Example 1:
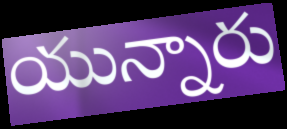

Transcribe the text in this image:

యున్నారు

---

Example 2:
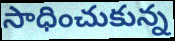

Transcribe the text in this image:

సాధించుకున్న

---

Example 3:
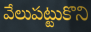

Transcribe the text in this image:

వేలుపట్టుకొని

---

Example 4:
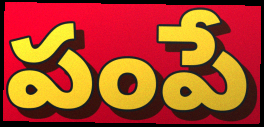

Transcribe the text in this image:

పంపే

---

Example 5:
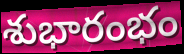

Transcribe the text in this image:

శుభారంభం